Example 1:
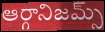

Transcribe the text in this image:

ఆర్గానిజమ్స్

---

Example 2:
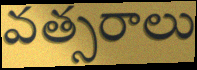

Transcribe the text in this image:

వత్సరాలు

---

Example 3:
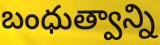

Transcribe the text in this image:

బంధుత్వాన్ని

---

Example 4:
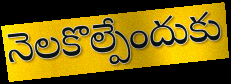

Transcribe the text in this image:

నెలకొల్పేందుకు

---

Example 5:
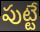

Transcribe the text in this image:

పుట్టే